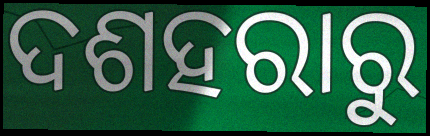
ଦଶହରାରୁ